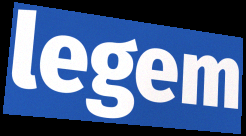
legem